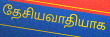
தேசியவாதியாக